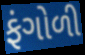
ફંગોળી